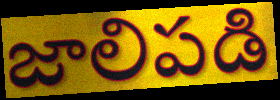
జాలిపడి